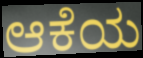
ಆಕೆಯ